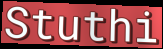
Stuthi